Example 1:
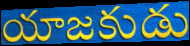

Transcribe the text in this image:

యాజకుడు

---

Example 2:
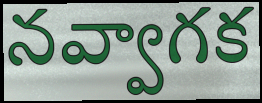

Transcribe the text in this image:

నవ్వాగక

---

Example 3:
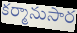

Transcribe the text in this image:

కర్మానుసార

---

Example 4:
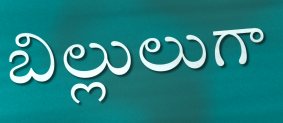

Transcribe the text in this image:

బిల్లులుగా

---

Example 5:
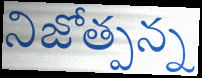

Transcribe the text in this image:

నిజోత్పన్న